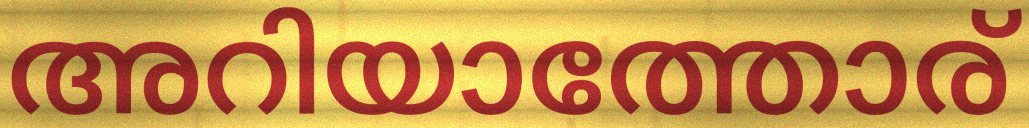
അറിയാത്തോര്